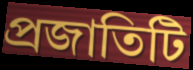
প্রজাতিটি